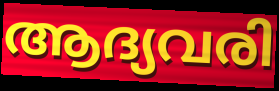
ആദ്യവരി